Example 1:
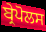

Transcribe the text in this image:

ਬ੍ਰੇਪੋਲਸ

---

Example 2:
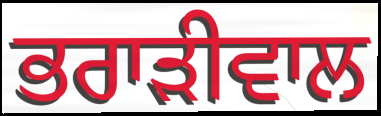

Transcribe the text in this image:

ਭਰਾੜੀਵਾਲ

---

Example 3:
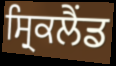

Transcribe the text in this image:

ਸ੍ਰਿਕਲੈਂਡ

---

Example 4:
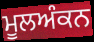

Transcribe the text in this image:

ਮੂਲਅੰਕਨ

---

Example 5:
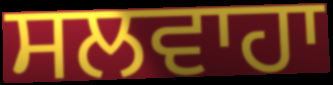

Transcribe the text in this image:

ਸਲਵਾਹਾ